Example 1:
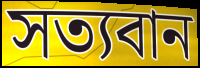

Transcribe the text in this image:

সত্যবান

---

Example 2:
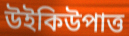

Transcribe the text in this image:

উইকিউপাত্ত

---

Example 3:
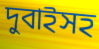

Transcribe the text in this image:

দুবাইসহ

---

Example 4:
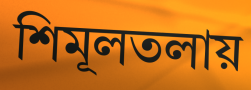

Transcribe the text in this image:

শিমূলতলায়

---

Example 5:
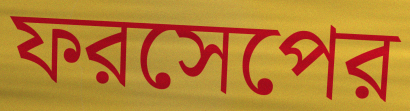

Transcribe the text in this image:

ফরসেপের